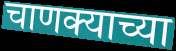
चाणक्याच्या